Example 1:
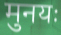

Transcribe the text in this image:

मुनयः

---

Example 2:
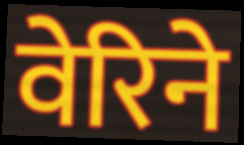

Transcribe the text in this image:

वेरिने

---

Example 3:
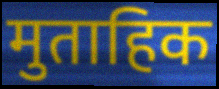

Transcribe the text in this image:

मुताहिक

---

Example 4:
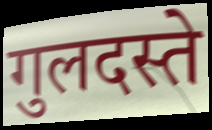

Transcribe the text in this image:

गुलदस्ते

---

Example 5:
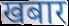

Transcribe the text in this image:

खबार